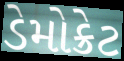
ડેમોક્રેટ